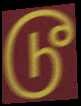
டூ